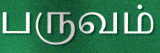
பருவம்